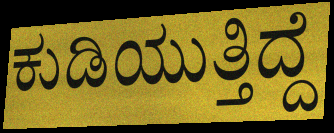
ಕುಡಿಯುತ್ತಿದ್ದೆ